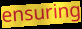
ensuring